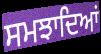
ਸਮਝਾਦਿਆਂ